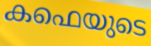
കഫെയുടെ